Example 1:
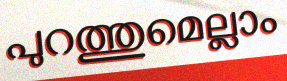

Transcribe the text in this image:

പുറത്തുമെല്ലാം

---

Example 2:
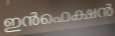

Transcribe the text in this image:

ഇൻഫെക്ഷൻ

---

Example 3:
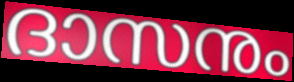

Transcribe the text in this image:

ദാസനും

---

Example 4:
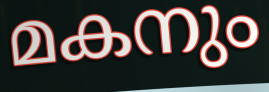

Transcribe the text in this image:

മകനും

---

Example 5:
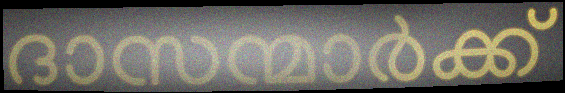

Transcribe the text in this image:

ദാസന്മാർക്ക്